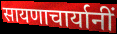
सायणाचार्यानीं